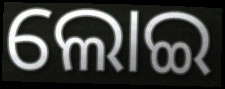
ଲୋଇ